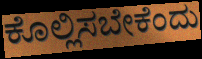
ಕೊಲ್ಲಿಸಬೇಕೆಂದು